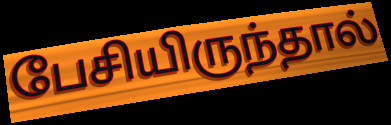
பேசியிருந்தால்